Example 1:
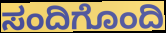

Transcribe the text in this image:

ಸಂದಿಗೊಂದಿ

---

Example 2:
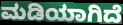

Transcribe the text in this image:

ಮಡಿಯಾಗಿದೆ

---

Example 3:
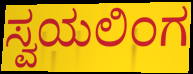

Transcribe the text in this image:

ಸ್ವಯಲಿಂಗ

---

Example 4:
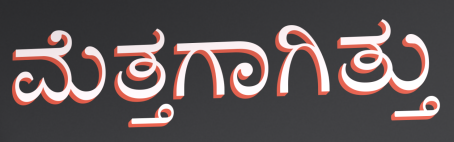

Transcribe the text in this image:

ಮೆತ್ತಗಾಗಿತ್ತು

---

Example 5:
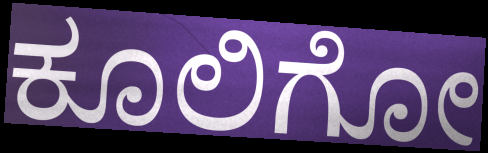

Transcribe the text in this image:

ಕೂಲಿಗೋ